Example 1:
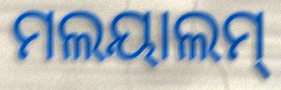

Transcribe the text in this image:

ମଲୟାଲମ୍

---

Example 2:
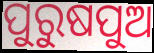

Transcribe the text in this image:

ପୁରୁଷପୁଅ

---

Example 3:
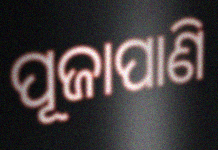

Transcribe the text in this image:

ପୂଜାପାଣି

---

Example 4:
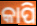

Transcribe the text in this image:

କାପି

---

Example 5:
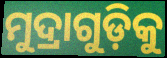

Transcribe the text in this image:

ମୁଦ୍ରାଗୁଡ଼ିକୁ